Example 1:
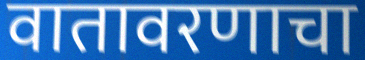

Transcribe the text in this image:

वातावरणाचा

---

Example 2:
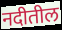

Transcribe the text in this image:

नदीतील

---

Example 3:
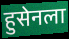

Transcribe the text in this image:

हुसेनला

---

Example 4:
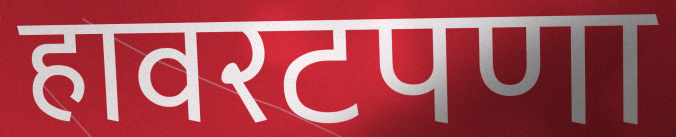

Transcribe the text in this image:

हावरटपणा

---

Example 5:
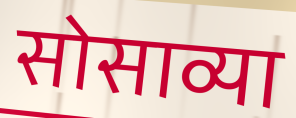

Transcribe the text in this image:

सोसाव्या